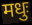
मधुः